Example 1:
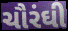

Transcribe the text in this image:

ચૌરંઘી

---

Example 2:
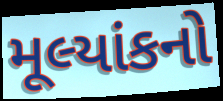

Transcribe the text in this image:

મૂલ્યાંકનો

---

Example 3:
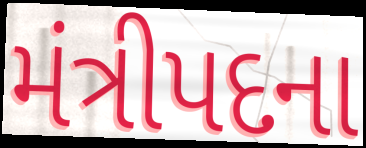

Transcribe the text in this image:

મંત્રીપદના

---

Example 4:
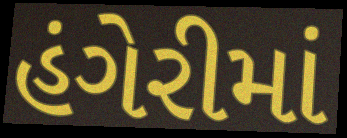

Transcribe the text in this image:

હંગેરીમાં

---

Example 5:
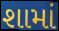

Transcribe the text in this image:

શામાં